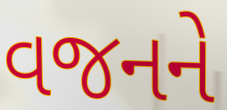
વજનને